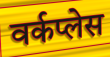
वर्कप्लेस